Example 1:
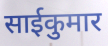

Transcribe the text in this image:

साईकुमार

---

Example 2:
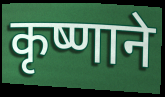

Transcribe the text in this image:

कृष्णाने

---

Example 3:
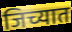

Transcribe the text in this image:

जिच्यात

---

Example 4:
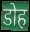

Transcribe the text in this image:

डोह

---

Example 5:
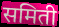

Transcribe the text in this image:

समिती